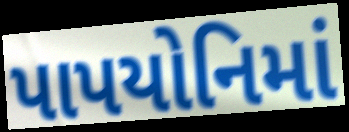
પાપયોનિમાં